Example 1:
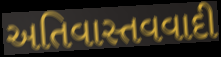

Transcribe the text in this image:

અતિવાસ્તવવાદી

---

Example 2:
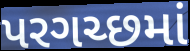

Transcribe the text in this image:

પરગચ્છમાં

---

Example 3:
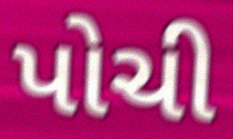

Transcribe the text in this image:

પોચી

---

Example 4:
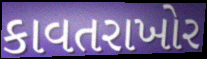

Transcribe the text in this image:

કાવતરાખોર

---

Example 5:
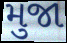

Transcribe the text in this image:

મુજા